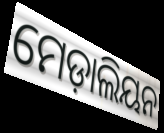
ମେଡ଼ାଲିୟନ